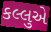
કલ્લુએ